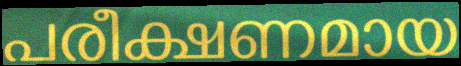
പരീക്ഷണമായ